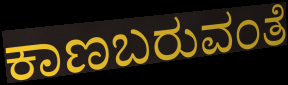
ಕಾಣಬರುವಂತೆ